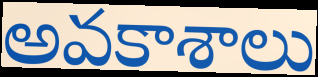
అవకాశాలు